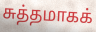
சுத்தமாகக்